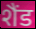
शैंड